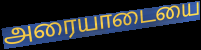
அரையாடையை